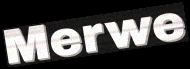
Merwe